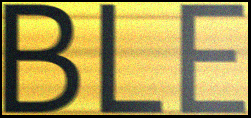
BLE